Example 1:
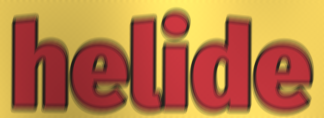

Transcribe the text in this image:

helide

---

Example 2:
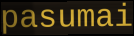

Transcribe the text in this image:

pasumai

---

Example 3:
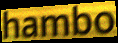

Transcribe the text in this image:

hambo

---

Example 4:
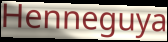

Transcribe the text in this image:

Henneguya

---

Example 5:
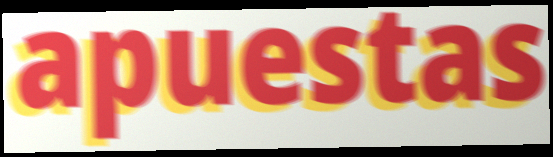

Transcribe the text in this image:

apuestas